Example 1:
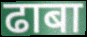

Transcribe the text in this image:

ढाबा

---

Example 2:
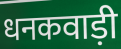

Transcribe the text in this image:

धनकवाड़ी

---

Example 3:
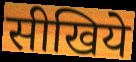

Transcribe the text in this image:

सीखिये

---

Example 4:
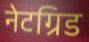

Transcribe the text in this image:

नेटग्रिड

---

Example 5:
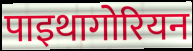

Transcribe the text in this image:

पाइथागोरियन